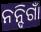
ନନ୍ଦିଗାଁ